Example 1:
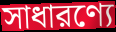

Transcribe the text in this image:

সাধারণ্যে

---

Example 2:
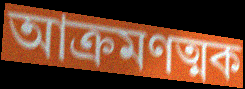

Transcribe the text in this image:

আক্রমণত্মক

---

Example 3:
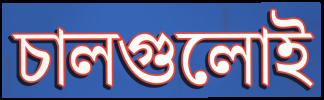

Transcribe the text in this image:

চালগুলোই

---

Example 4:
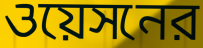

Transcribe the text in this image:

ওয়েসনের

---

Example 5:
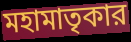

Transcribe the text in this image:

মহামাতৃকার